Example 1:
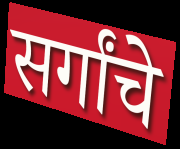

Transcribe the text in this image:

सर्गांचे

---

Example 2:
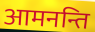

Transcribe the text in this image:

आमनन्ति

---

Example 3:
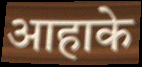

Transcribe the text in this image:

आहाके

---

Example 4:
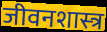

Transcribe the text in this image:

जीवनशास्त्र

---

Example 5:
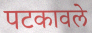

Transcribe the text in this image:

पटकावले